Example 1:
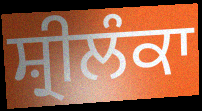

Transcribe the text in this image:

ਸ਼੍ਰ੍ਰੀਲੰਕਾ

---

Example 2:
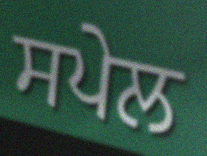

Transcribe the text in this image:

ਸਪੇਲ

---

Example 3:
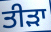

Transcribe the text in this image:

ਤੀੜਾ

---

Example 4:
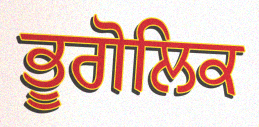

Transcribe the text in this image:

ਭੂਗੋਲਿਕ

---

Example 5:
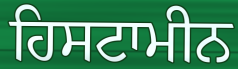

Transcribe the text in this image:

ਹਿਸਟਾਮੀਨ